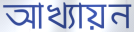
আখ্যায়ন